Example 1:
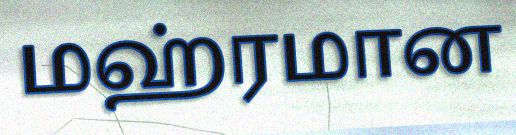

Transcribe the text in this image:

மஹ்ரமான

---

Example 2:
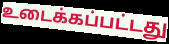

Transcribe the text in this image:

உடைக்கப்பட்டது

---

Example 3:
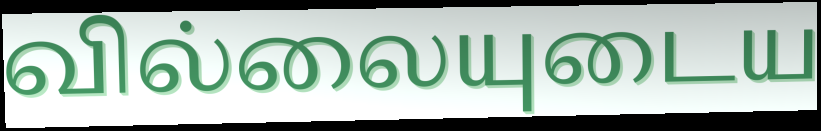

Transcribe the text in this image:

வில்லையுடைய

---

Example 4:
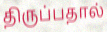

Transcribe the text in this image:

திருப்பதால்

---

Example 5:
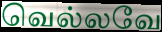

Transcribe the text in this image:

வெல்லவே